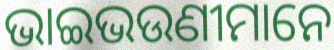
ଭାଇଭଉଣୀମାନେ